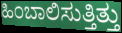
ಹಿಂಬಾಲಿಸುತ್ತಿತ್ತು